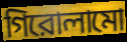
গিরোলামো